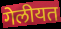
गेलीयत